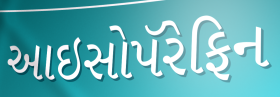
આઇસોપૅરેફિન